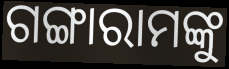
ଗଙ୍ଗାରାମଙ୍କୁ